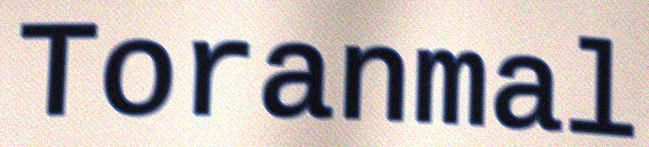
Toranmal